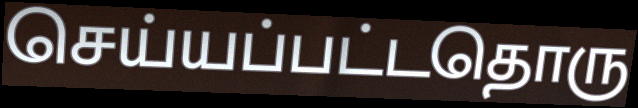
செய்யப்பட்டதொரு